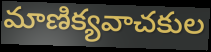
మాణిక్యవాచకుల